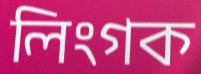
লিংগক